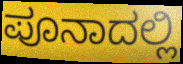
ಪೂನಾದಲ್ಲಿ